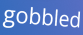
gobbled